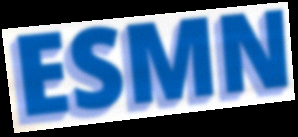
ESMN